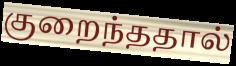
குறைந்ததால்